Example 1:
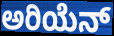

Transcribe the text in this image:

ಅರಿಯೆನ್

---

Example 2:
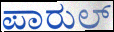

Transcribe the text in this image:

ಪಾರುಲ್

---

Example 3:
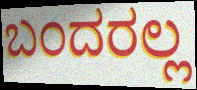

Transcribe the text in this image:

ಬಂದರಲ್ಲ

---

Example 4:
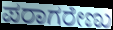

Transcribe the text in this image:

ಪರಾಗರೇಣು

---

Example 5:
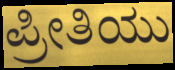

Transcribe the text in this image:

ಪ್ರೀತಿಯು